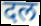
दल